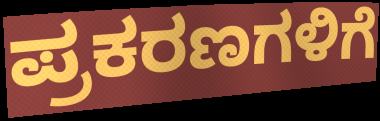
ಪ್ರಕರಣಗಳಿಗೆ